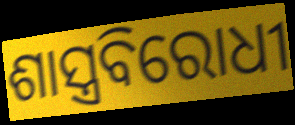
ଶାସ୍ତ୍ରବିରୋଧୀ